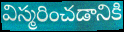
విస్మరించడానికి